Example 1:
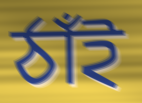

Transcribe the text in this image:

ঠাঁই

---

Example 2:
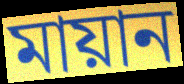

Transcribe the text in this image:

মায়ান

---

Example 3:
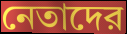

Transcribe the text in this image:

নেতাদের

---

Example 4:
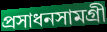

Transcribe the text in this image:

প্রসাধনসামগ্রী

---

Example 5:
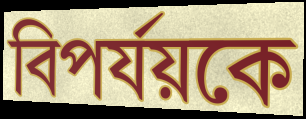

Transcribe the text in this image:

বিপর্যয়কে